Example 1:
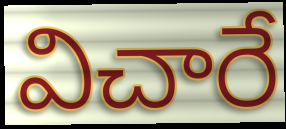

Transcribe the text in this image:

విచారే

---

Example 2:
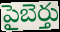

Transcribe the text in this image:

పైబెర్తు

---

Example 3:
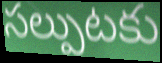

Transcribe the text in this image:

సల్పుటకు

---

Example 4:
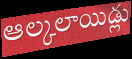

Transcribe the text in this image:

ఆల్కలాయిడ్లు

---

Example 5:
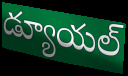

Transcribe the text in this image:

డ్యూయల్